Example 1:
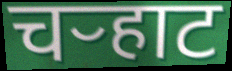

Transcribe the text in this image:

चऱ्हाट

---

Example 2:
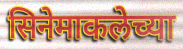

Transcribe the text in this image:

सिनेमाकलेच्या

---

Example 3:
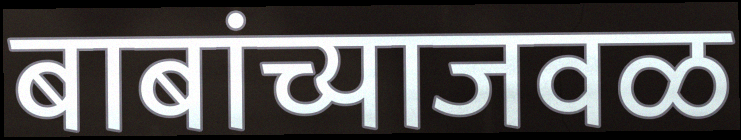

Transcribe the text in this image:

बाबांच्याजवळ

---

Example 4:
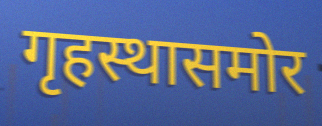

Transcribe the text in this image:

गृहस्थासमोर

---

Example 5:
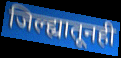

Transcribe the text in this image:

जिल्ह्यातूनही